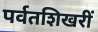
पर्वतशिखरीं